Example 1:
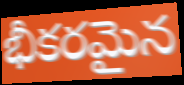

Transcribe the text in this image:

భీకరమైన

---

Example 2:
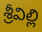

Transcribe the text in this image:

శ్రీవిల్లి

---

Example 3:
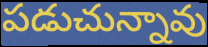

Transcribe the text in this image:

పడుచున్నావు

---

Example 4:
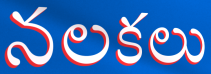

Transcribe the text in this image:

నలకలు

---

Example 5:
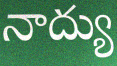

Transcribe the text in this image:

నాద్యు